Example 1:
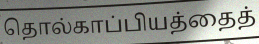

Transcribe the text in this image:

தொல்காப்பியத்தைத்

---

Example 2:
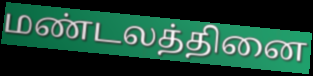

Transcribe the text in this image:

மண்டலத்தினை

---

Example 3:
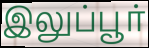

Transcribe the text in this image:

இலுப்பூர்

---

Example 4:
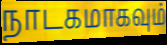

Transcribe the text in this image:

நாடகமாகவும்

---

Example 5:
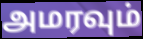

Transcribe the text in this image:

அமரவும்